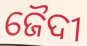
ଜୈଦୀ